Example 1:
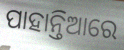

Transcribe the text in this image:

ପାହାନ୍ତିଆରେ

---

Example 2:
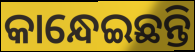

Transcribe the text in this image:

କାନ୍ଧେଇଛନ୍ତି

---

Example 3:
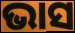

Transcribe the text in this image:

ଭାସ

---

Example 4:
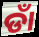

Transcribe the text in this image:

ଡାଁ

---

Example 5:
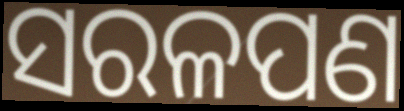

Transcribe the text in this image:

ସରଳପଣ